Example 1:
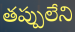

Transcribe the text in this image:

తప్పులేని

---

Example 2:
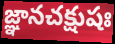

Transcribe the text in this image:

జ్ఞానచక్షుషః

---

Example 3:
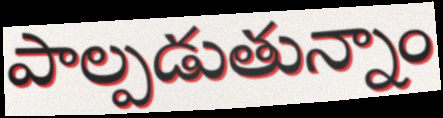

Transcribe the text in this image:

పాల్పడుతున్నాం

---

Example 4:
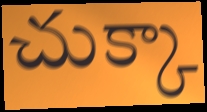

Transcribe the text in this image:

చుక్కా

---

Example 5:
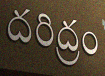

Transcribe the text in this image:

దరిద్రం